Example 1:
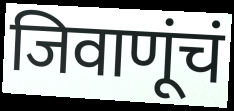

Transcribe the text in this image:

जिवाणूंचं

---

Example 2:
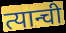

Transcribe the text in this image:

त्यान्ची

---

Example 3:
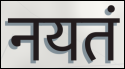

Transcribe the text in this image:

नयतं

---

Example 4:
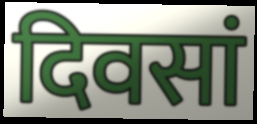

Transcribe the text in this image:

दिवसां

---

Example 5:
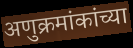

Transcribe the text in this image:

अणुक्रमांकांच्या